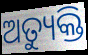
ଅତ୍ୟୁକ୍ତି